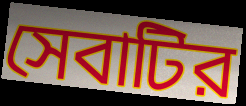
সেবাটির